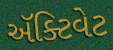
ઍક્ટિવેટ